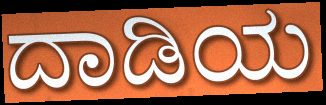
ದಾಡಿಯ